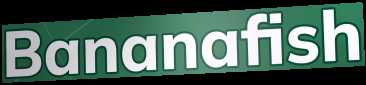
Bananafish